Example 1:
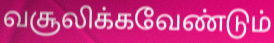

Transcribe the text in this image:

வசூலிக்கவேண்டும்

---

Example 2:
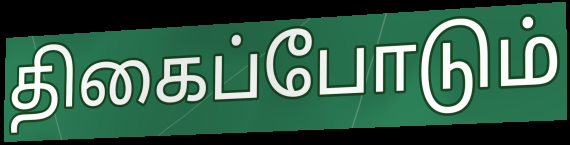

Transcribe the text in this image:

திகைப்போடும்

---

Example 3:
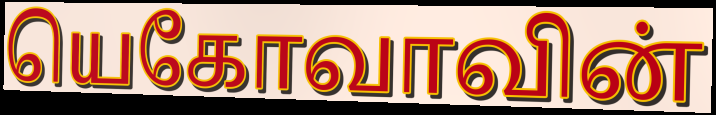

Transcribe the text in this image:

யெகோவாவின்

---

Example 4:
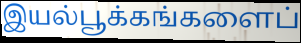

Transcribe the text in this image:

இயல்பூக்கங்களைப்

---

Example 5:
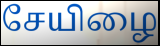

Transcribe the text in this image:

சேயிழை